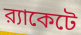
র‍্যাকেটে